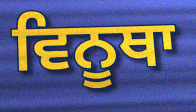
ਵਿਨੂਥਾ